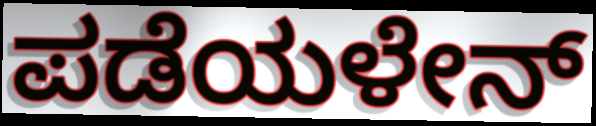
ಪಡೆಯಳೇನ್